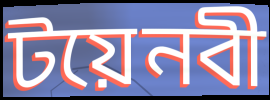
টয়েনবী